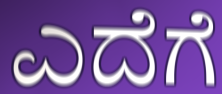
ಎದೆಗೆ